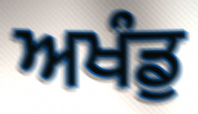
ਅਖੰਡੁ